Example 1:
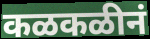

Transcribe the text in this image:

कळकळीनं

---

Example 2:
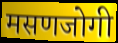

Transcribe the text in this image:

मसणजोगी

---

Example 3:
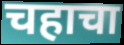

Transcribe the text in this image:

चहाचा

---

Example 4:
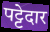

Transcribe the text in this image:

पट्टेदार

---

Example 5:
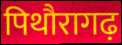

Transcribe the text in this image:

पिथौरागढ़